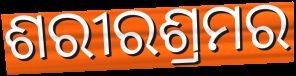
ଶରୀରଶ୍ରମର